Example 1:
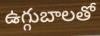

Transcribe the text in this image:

ఉగ్గుబాలతో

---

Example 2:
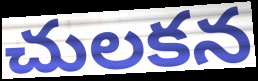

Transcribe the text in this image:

చులకన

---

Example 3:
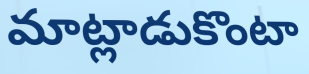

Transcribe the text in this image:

మాట్లాడుకొంటా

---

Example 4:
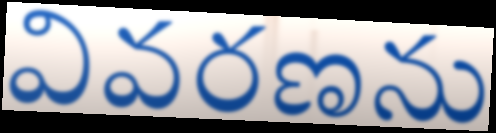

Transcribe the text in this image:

వివరణను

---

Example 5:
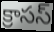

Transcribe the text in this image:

క్రాసస్